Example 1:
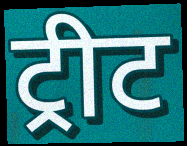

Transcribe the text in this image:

ट्रीट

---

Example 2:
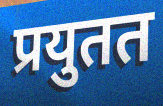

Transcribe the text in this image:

प्रयुतत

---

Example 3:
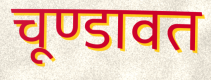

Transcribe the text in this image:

चूण्डावत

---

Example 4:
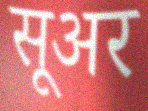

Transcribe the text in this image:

सूअर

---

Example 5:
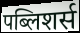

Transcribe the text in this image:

पब्लिशर्स